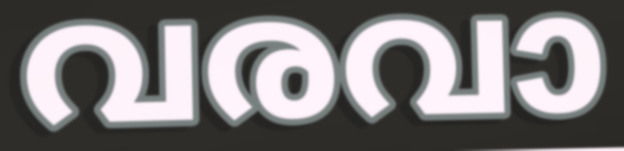
വരവാ